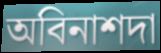
অবিনাশদা